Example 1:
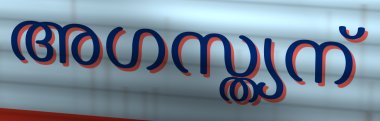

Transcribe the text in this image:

അഗസ്ത്യന്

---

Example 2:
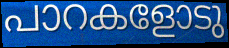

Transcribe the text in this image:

പാറകളോടു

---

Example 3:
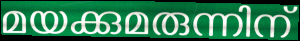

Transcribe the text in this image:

മയക്കുമരുന്നിന്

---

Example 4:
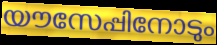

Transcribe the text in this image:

യൗസേപ്പിനോടും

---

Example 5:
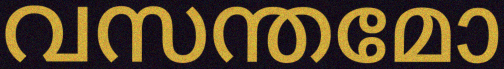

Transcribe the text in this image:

വസന്തമോ